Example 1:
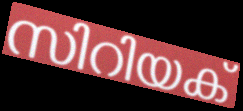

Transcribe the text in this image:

സിറിയക്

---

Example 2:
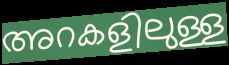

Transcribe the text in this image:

അറകളിലുള്ള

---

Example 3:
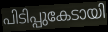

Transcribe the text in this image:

പിടിപ്പുകേടായി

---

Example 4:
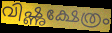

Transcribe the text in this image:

വിഷ്ണുക്ഷേത്രം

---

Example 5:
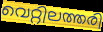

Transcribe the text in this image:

വെറ്റിലത്തരി